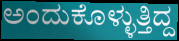
ಅಂದುಕೊಳ್ಳುತ್ತಿದ್ದ